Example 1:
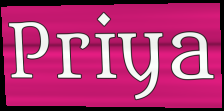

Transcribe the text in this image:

Priya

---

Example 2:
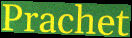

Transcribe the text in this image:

Prachet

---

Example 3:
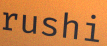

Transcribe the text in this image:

rushi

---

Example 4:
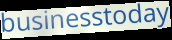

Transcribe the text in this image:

businesstoday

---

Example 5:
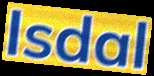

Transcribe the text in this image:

Isdal